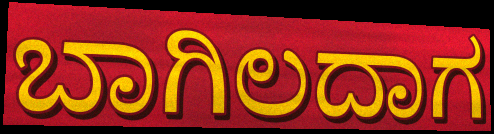
ಬಾಗಿಲದಾಗ